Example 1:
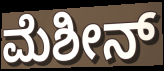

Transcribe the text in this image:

ಮೆಶೀನ್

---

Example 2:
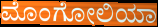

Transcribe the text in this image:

ಮೊಂಗೋಲಿಯಾ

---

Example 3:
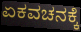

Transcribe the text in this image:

ಏಕವಚನಕ್ಕೆ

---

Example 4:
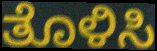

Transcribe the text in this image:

ತೊಳಿಸಿ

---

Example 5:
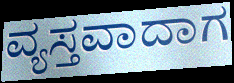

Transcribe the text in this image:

ವ್ಯಸ್ತವಾದಾಗ